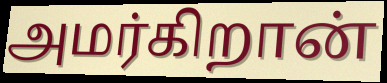
அமர்கிறான்